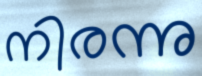
നിരന്നു